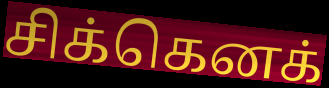
சிக்கெனக்